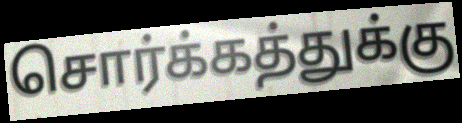
சொர்க்கத்துக்கு